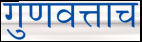
गुणवत्ताच